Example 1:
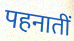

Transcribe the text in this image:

पहनातीं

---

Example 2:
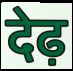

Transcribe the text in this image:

देढ़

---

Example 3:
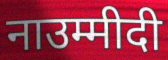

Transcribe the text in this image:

नाउम्मीदी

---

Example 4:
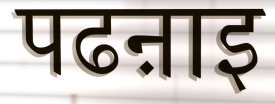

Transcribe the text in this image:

पढऩाइ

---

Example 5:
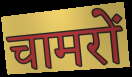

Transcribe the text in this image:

चामरों